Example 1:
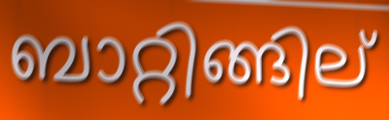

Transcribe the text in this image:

ബാറ്റിങ്ങില്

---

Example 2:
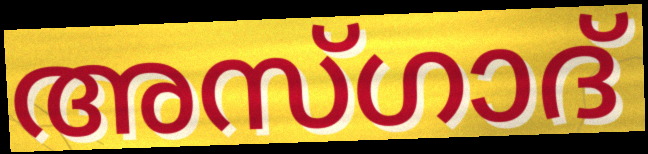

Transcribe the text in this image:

അസ്ഗാദ്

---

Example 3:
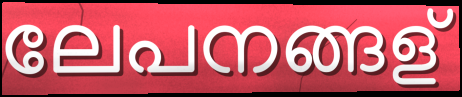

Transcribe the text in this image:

ലേപനങ്ങള്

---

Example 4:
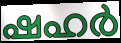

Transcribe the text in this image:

ഷഹർ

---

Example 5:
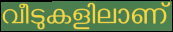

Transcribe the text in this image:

വീടുകളിലാണ്